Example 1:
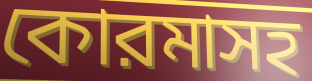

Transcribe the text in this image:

কোরমাসহ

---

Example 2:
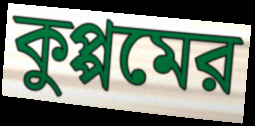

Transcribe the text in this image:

কুপ্পমের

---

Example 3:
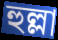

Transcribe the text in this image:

হুল্লা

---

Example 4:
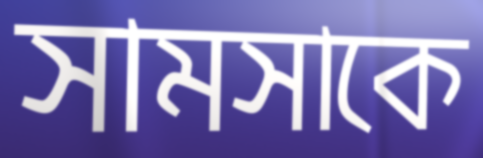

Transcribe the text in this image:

সামসাকে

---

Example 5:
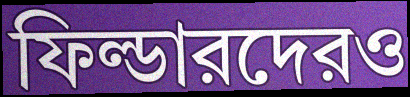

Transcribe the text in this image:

ফিল্ডারদেরও